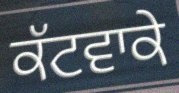
ਕੱਟਵਾਕੇ